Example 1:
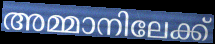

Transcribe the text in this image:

അമ്മാനിലേക്ക്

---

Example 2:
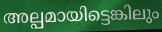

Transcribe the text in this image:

അല്പമായിട്ടെങ്കിലും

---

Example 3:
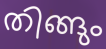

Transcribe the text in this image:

തിങ്ങും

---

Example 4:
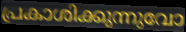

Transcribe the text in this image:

പ്രകാശിക്കുന്നുവോ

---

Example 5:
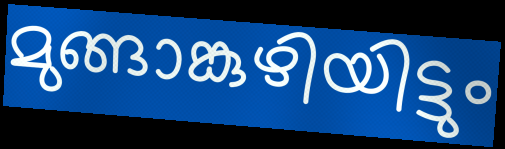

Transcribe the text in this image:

മുങ്ങാങ്കുഴിയിട്ടും